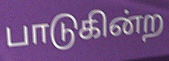
பாடுகின்ற